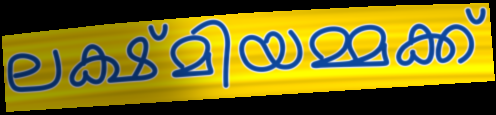
ലക്ഷ്മിയമ്മക്ക്